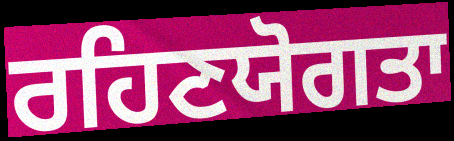
ਰਹਿਣਯੋਗਤਾ